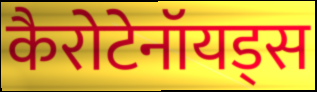
कैरोटेनॉयड्स